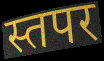
स्तपर